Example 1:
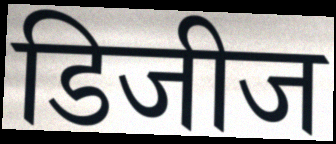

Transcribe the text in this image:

डिजीज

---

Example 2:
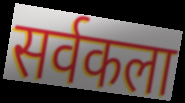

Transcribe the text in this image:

सर्वकला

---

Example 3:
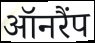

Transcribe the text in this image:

ऑनरैंप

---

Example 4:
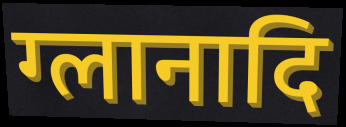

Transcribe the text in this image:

ग्लानादि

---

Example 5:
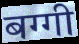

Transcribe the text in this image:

बग्गी